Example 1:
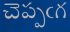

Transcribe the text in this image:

చెప్పఁగ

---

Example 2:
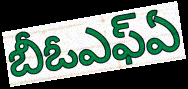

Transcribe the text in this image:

బీఓఎఫ్ఏ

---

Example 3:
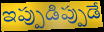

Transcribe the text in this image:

ఇప్పుడిప్పుడే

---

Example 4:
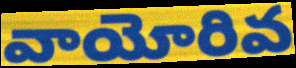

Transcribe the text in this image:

వాయోరివ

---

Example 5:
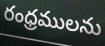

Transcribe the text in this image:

రంధ్రములను